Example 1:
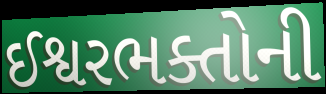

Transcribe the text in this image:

ઈશ્વરભક્તોની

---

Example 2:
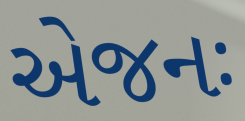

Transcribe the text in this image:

એજનઃ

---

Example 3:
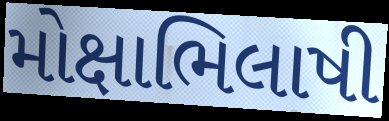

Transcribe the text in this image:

મોક્ષાભિલાષી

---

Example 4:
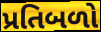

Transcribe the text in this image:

પ્રતિબળો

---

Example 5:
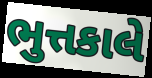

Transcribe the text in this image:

ભુત્તકાલે